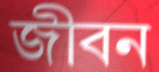
জীবন